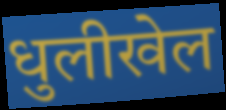
धुलीखेल